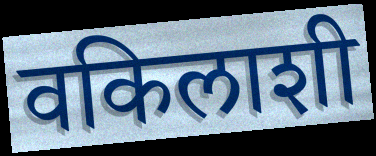
वकिलाशी